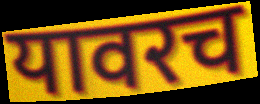
यावरच